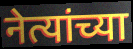
नेत्यांच्या